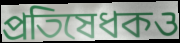
প্রতিষেধকও